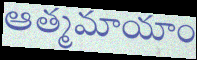
ఆత్మమాయాం